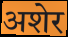
अशेर